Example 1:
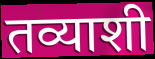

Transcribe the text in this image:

तव्याशी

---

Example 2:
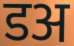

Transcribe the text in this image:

डअ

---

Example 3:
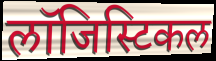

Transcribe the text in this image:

लॉजिस्टिकल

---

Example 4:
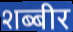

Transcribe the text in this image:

शब्बीर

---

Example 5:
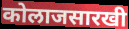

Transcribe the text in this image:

कोलाजसारखी